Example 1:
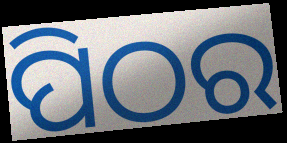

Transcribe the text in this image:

ପିଠର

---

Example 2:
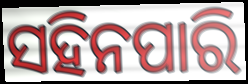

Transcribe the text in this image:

ସହିନପାରି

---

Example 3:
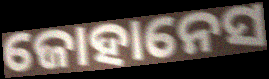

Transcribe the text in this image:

ଜୋହାନେସ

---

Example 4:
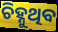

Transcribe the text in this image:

ଚିହ୍ନୁଥିବ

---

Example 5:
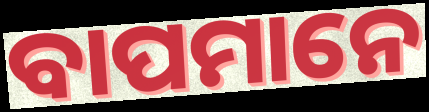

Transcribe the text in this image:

ବାପମାନେ